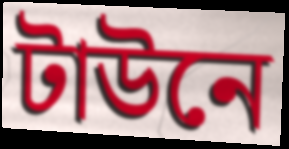
টাউনে